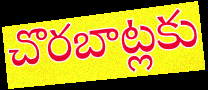
చొరబాట్లకు